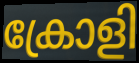
ക്രോളി